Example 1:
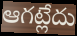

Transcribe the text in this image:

ఆగట్లేదు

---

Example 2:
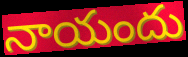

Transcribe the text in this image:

నాయందు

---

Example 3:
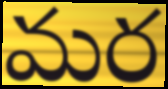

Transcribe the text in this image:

మర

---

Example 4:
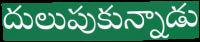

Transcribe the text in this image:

దులుపుకున్నాడు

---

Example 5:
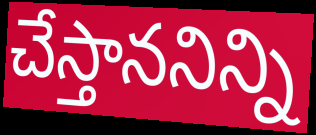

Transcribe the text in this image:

చేస్తాననిన్ని